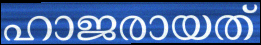
ഹാജരായത്